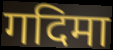
गदिमा